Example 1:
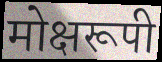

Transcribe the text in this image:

मोक्षरूपी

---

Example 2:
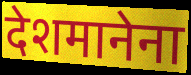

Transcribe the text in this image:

देशमानेना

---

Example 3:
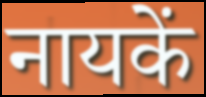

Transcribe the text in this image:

नायकें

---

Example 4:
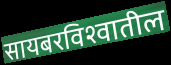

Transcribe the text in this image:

सायबरविश्वातील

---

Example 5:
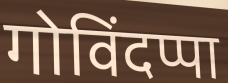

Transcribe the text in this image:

गोविंदप्पा